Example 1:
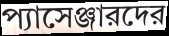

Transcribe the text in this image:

প্যাসেঞ্জারদের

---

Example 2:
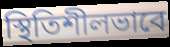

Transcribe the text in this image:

স্থিতিশীলভাবে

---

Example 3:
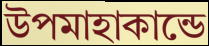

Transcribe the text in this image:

উপমাহাকান্ডে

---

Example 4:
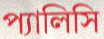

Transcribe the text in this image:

প্যালিসি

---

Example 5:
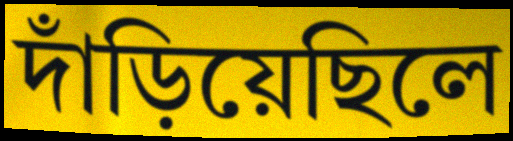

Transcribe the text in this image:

দাঁড়িয়েছিলে